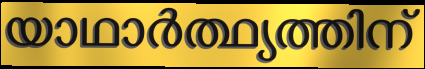
യാഥാർത്ഥ്യത്തിന്